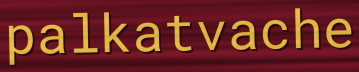
palkatvache